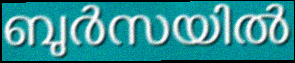
ബുർസയിൽ